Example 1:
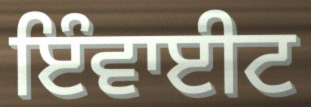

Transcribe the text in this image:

ਇੰਵਾਈਟ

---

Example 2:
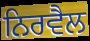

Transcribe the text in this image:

ਨਿਰਵੈਲ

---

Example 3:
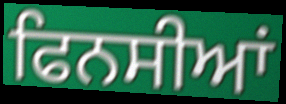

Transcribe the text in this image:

ਫਿਨਸੀਆਂ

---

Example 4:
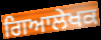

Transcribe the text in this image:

ਗਿਆਲੇਖਕ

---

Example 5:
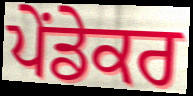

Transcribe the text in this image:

ਪੇਂਡੇਕਰ